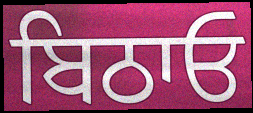
ਬਿਠਾਓ